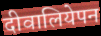
दीवालियेपन